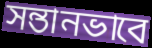
সন্তানভাবে